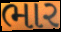
ભાર